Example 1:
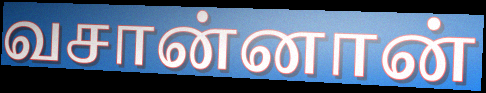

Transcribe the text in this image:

வசான்னான்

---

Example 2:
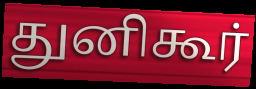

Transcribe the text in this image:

துனிகூர்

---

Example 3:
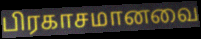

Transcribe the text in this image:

பிரகாசமானவை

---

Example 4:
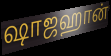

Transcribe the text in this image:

ஷாஜஹான்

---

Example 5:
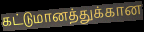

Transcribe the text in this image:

கட்டுமானத்துக்கான